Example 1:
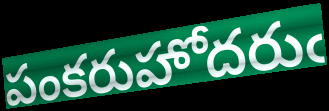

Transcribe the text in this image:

పంకరుహోదరుఁ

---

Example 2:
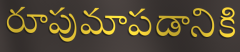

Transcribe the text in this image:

రూపుమాపడానికి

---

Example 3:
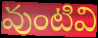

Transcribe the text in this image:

వుంటివి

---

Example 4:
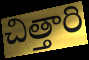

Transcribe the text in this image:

చిత్తారి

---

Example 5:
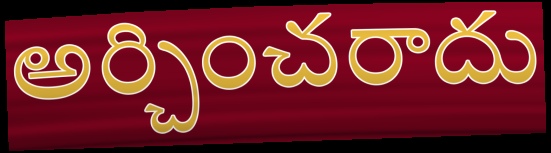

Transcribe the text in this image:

అర్చించరాదు